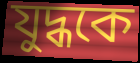
যুদ্ধকে